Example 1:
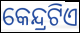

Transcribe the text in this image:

କେନ୍ଦ୍ରଟିଏ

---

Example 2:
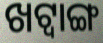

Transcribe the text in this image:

ଖଟ୍ଵାଙ୍ଗ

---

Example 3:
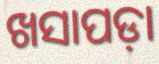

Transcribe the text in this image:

ଖସାପଡ଼ା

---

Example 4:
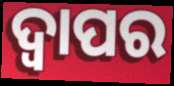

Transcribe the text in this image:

ଦ୍ୱାପର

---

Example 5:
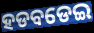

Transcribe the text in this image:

ହଡବଡେଇ